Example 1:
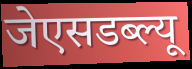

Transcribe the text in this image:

जेएसडब्ल्यू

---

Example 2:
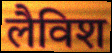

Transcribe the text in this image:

लैविश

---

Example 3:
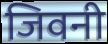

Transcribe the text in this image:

जिवनी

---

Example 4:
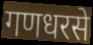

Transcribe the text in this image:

गणधरसे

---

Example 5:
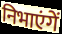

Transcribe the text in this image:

निभाएंगें